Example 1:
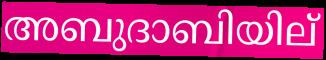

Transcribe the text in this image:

അബുദാബിയില്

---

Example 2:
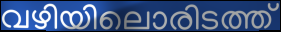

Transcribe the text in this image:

വഴിയിലൊരിടത്ത്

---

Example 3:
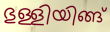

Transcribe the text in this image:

ഭുള്ളിയിങ്ങ്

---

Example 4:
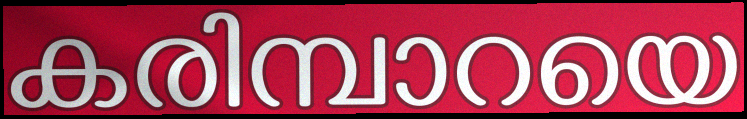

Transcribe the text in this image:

കരിമ്പാറയെ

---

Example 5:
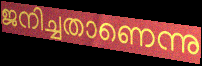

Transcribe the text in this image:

ജനിച്ചതാണെന്നു